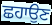
ਛਹਾਉਣ